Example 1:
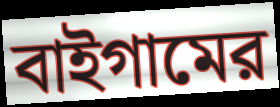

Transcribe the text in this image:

বাইগামের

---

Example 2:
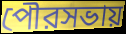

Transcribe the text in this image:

পৌরসভায়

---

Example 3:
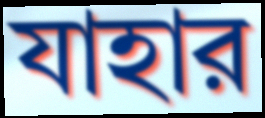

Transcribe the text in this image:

যাহার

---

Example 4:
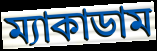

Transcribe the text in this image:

ম্যাকাডাম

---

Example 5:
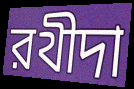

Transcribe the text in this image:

রথীদা